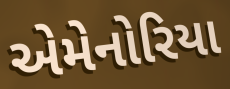
એમેનોરિયા